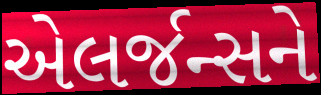
એલર્જન્સને